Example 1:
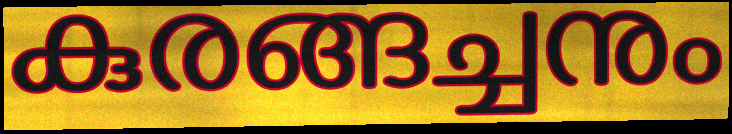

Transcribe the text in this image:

കുരങ്ങച്ചനും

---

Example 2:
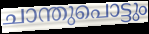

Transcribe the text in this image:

ചാന്തുപൊട്ടും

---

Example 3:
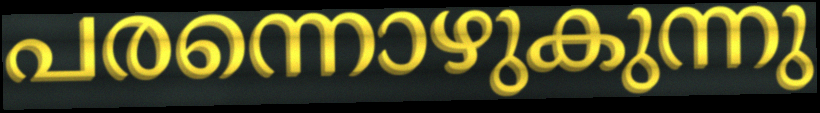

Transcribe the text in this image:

പരന്നൊഴുകുന്നു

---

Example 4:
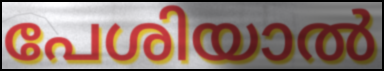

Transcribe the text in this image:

പേശിയാൽ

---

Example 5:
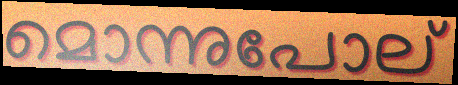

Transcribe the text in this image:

മൊന്നുപോല്